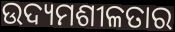
ଉଦ୍ୟମଶୀଳତାର